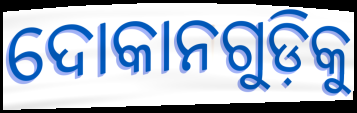
ଦୋକାନଗୁଡ଼ିକୁ